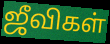
ஜீவிகள்